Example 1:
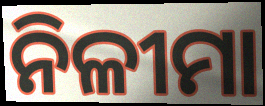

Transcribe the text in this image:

ନିଳୀମା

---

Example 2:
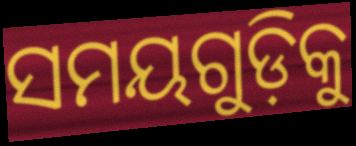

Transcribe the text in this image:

ସମୟଗୁଡ଼ିକୁ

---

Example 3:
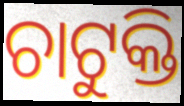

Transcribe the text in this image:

ଚାଟୁକ୍ତି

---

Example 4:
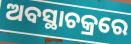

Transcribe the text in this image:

ଅବସ୍ଥାଚକ୍ରରେ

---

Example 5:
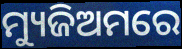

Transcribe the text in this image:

ମ୍ୟୁଜିଅମରେ